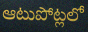
ఆటుపోట్లలో